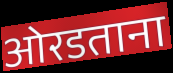
ओरडताना